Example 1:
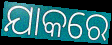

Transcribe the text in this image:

ଯାକରେ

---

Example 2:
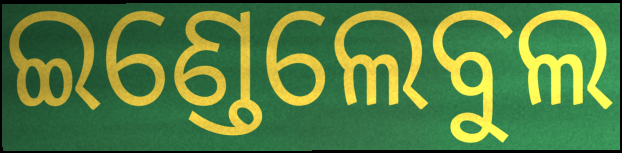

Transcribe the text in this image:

ଇଣ୍ଡେଲେବୁଲ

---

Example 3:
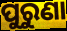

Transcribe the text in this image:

ପୁରୁଣା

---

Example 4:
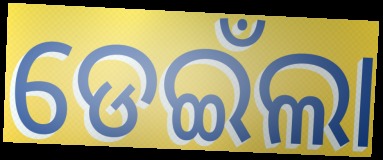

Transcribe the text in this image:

ଡେଇଁଲା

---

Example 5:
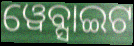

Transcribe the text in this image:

ୱେବ୍ସାଇଟ